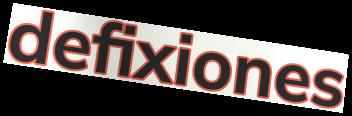
defixiones